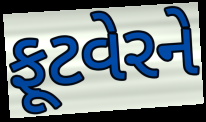
ફૂટવેરને